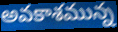
అవకాశమున్న